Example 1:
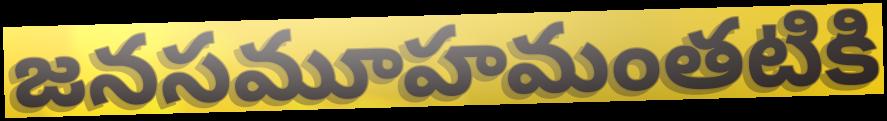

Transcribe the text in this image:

జనసమూహమంతటికి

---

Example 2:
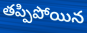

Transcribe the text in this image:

తప్పిపోయిన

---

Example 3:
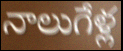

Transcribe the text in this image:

నాలుగేళ్ల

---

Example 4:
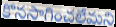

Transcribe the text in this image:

కొనసాగించలేమని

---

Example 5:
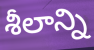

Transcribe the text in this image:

శీలాన్ని